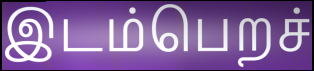
இடம்பெறச்